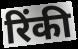
रिंकी